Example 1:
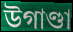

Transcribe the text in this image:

উগাণ্ডা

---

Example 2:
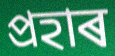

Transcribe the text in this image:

প্ৰহাৰ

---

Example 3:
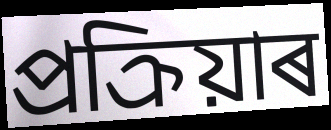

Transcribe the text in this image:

প্ৰক্ৰিয়াৰ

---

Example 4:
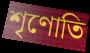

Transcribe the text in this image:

শৃণোতি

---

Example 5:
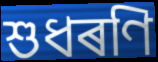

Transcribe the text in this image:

শুধৰণি